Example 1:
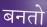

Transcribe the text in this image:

बनतो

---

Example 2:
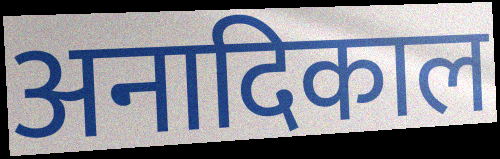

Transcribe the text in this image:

अनादिकाल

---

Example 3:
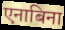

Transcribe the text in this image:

एनाबिना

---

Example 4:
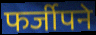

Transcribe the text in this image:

फर्जीपने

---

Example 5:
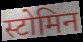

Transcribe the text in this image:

स्टोमिन